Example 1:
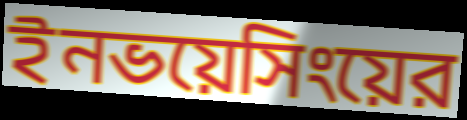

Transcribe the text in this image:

ইনভয়েসিংয়ের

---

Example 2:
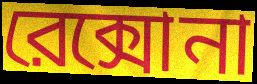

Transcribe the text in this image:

রেক্সোনা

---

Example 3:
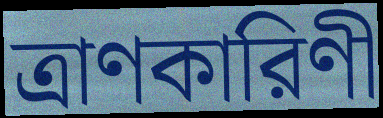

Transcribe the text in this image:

ত্রাণকারিণী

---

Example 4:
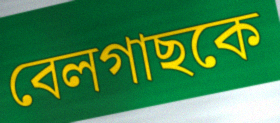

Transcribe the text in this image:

বেলগাছকে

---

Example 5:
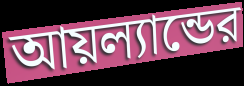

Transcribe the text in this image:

আয়ল্যান্ডের